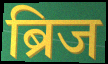
ब्रिज